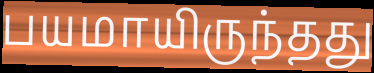
பயமாயிருந்தது